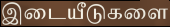
இடையீடுகளை